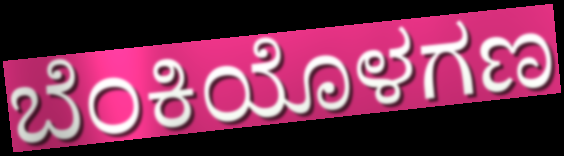
ಬೆಂಕಿಯೊಳಗಣ